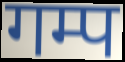
गम्प